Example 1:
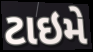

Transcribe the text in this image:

ટાઇમે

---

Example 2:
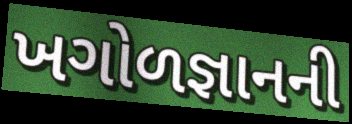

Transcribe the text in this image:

ખગોળજ્ઞાનની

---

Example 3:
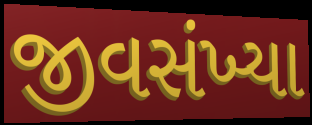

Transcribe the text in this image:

જીવસંખ્યા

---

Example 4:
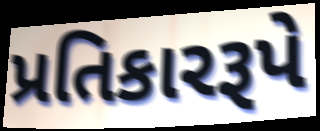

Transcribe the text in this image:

પ્રતિકારરૂપે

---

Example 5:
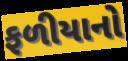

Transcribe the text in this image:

ફળીયાનો